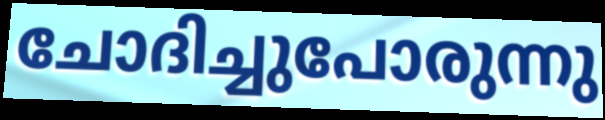
ചോദിച്ചുപോരുന്നു